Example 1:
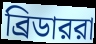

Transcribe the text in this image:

ব্রিডাররা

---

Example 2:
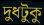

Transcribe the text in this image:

দুধটুকু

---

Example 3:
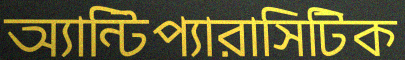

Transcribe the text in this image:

অ্যান্টিপ্যারাসিটিক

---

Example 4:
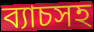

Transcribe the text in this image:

ব্যাচসহ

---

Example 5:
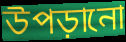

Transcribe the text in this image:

উপড়ানো